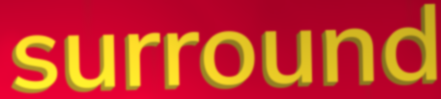
surround